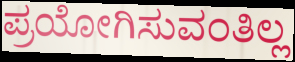
ಪ್ರಯೋಗಿಸುವಂತಿಲ್ಲ